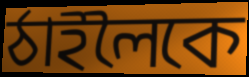
ঠাইলৈকে